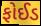
ફોઈડ